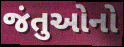
જંતુઓનો